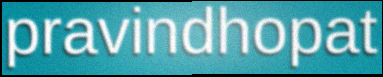
pravindhopat